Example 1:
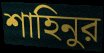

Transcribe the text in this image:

শাহিনুর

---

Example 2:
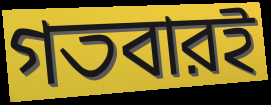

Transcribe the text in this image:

গতবারই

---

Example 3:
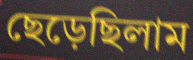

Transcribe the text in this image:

ছেড়েছিলাম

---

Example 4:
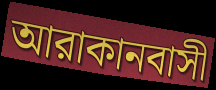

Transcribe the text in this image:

আরাকানবাসী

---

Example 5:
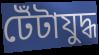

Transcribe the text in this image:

টেঁটাযুদ্ধ